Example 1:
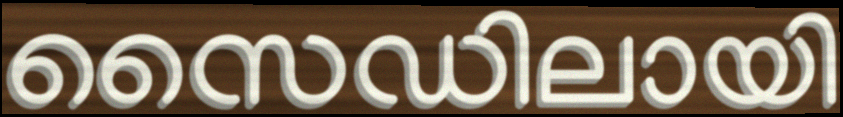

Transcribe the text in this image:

സൈഡിലായി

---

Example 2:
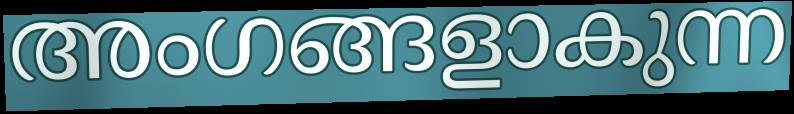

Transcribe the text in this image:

അംഗങ്ങളാകുന്ന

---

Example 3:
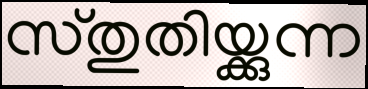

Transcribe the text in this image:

സ്തുതിയ്ക്കുന്ന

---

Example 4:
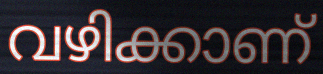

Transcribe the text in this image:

വഴിക്കാണ്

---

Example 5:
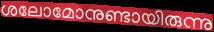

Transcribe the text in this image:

ശലോമോനുണ്ടായിരുന്നു